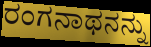
ರಂಗನಾಥನನ್ನು